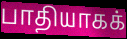
பாதியாகக்